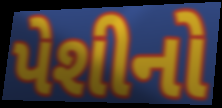
પેશીનો